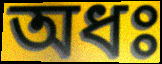
অধঃ